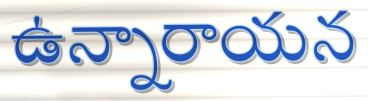
ఉన్నారాయన